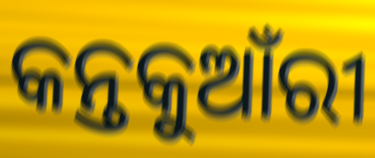
କନ୍ତକୁଆଁରୀ